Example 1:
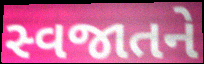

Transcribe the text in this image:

સ્વજાતને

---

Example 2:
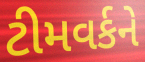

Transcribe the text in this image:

ટીમવર્કને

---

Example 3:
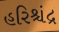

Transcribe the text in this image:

હરિશ્ચંદ્ર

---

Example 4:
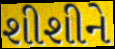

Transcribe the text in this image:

શીશીને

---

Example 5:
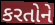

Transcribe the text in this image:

કરતોને